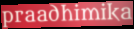
praadhimika